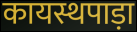
कायस्थपाड़ा